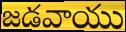
జడవాయు